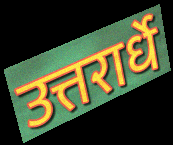
उत्तरार्धे